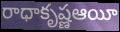
రాధాకృష్ణఆయీ